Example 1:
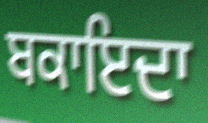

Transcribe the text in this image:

ਬਕਾਇਦਾ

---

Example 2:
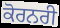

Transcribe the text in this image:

ਕੋਰਨਰੀ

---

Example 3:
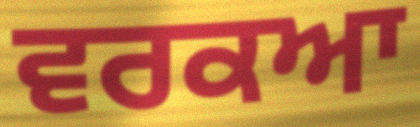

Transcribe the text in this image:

ਵਰਕਆ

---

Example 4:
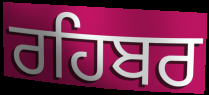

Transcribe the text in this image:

ਰਹਿਬਰ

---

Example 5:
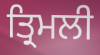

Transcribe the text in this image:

ਤ੍ਰਿਮਲੀ